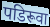
पडिरूवा